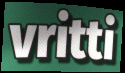
vritti